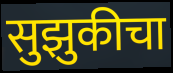
सुझुकीचा